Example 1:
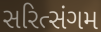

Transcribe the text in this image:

સરિત્સંગમ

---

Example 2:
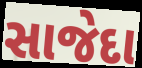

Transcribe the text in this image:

સાજેદા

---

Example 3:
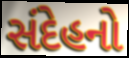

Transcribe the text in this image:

સંદેહનો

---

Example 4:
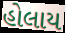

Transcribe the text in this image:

હોલાય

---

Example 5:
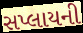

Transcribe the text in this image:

સપ્લાયની